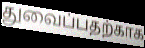
துவைப்பதற்காக